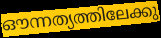
ഔന്നത്യത്തിലേക്കു